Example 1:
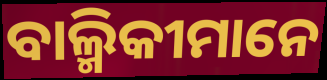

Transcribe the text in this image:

ବାଲ୍ମିକୀମାନେ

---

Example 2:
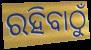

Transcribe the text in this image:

ରହିବାଠୁଁ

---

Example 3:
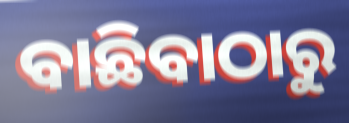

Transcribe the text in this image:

ବାଛିବାଠାରୁ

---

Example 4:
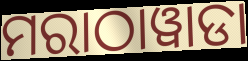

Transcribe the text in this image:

ମରାଠାୱାଡା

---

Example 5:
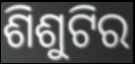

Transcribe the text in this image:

ଶିଶୁଟିର